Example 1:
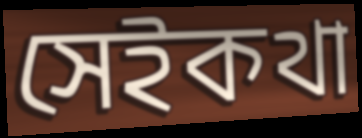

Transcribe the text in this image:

সেইকথা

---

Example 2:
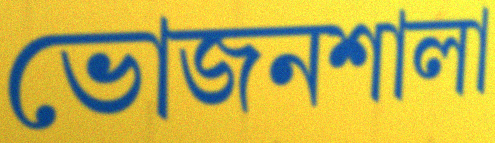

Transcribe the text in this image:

ভোজনশালা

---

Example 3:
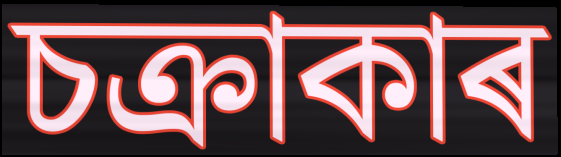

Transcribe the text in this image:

চক্ৰাকাৰ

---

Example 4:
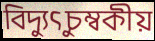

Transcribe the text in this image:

বিদ্যুৎচুম্বকীয়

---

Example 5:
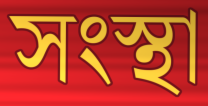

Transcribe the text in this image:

সংস্থা